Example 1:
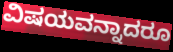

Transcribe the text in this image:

ವಿಷಯವನ್ನಾದರೂ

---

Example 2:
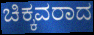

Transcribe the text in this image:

ಚಿಕ್ಕವರಾದ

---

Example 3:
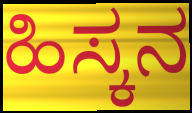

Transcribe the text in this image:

ಹಿಸ್ಕನ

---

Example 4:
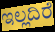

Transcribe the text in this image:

ಇಲ್ಲದಿರೆ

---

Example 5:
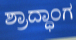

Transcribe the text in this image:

ಶ್ರಾದ್ಧಾಂಗ